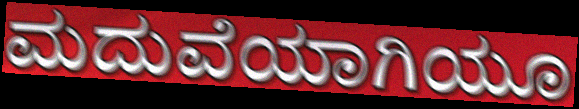
ಮದುವೆಯಾಗಿಯೂ